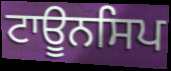
ਟਾਊਨਸਿਪ